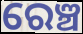
ରେଞ୍ଚ